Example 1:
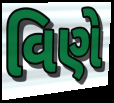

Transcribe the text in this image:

વિણે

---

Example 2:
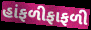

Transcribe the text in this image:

હાંફળીફાફળી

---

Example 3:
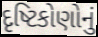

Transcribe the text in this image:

દૃષ્ટિકોણોનું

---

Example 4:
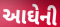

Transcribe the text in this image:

આઘેની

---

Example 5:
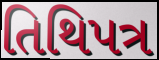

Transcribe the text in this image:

તિથિપત્ર